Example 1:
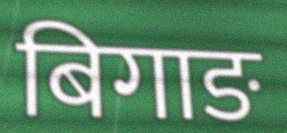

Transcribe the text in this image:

बिगाङ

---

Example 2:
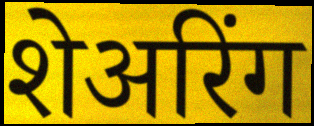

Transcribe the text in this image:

शेअरिंग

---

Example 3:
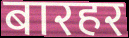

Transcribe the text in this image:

बारहर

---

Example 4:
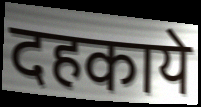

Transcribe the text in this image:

दहकाये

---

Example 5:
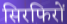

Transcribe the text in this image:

सिरफिरों